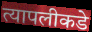
त्यापलीकडे